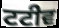
ਟਟੀਵ